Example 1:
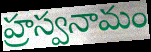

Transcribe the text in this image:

హ్రస్వనామం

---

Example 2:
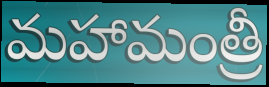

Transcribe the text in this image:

మహామంత్రీ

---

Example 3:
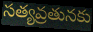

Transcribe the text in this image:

సత్యవ్రతునకు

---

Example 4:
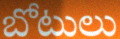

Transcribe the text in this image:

బోటులు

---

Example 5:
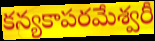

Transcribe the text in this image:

కన్యకాపరమేశ్వరీ